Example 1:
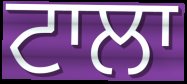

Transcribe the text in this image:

ਟਾਲਾ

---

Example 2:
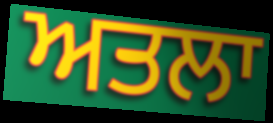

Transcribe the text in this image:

ਅਤਲਾ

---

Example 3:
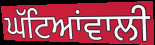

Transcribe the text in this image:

ਘੱਟਿਆਂਵਾਲੀ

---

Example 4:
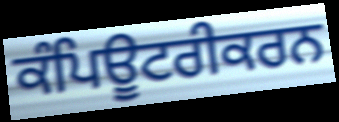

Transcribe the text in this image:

ਕੰਪਿਊਟਰੀਕਰਨ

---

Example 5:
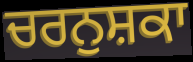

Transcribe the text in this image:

ਚਰਨੁਸ਼ਕਾ